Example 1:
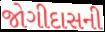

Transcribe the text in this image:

જોગીદાસની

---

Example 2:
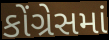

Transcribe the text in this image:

કોંગ્રેસમાં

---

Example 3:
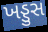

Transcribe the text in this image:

ખડ્ડુસ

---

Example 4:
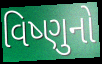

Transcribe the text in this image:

વિષ્ણુનો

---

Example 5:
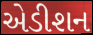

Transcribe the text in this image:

એડીશન